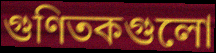
গুণিতকগুলো